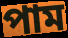
পাম